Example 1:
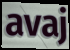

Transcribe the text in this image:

avaj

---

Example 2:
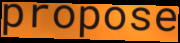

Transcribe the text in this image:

propose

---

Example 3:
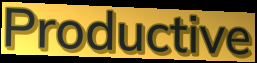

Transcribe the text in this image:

Productive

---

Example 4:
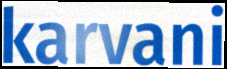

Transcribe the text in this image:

karvani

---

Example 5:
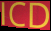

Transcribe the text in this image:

ICD